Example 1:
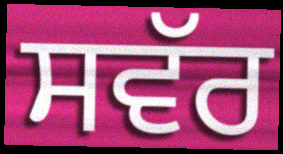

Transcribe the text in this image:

ਸਵੱਰ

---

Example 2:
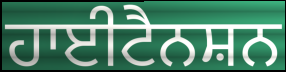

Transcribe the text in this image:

ਹਾਈਟੈਨਸ਼ਨ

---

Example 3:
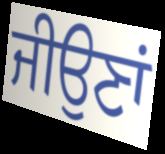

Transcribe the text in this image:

ਜੀਉਣਾਂ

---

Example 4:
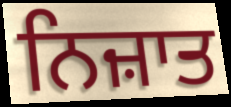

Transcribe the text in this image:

ਨਿਜ਼ਾਤ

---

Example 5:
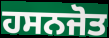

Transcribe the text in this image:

ਹਸਨਜੋਤ